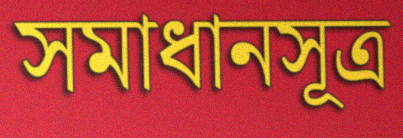
সমাধানসূত্র